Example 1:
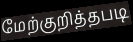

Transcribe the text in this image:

மேற்குறித்தபடி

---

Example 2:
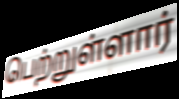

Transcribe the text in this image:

பெற்றுள்ளார்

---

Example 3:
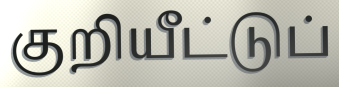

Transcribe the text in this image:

குறியீட்டுப்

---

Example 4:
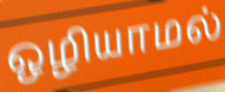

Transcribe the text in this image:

ஒழியாமல்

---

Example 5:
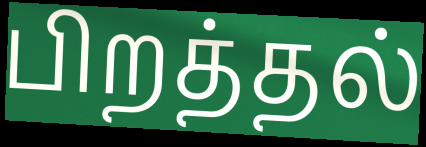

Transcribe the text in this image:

பிறத்தல்